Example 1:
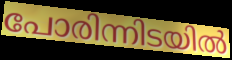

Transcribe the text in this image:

പോരിന്നിടയിൽ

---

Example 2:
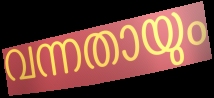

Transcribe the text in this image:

വന്നതായും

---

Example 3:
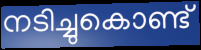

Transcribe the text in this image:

നടിച്ചുകൊണ്ട്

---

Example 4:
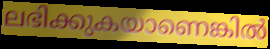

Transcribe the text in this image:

ലഭിക്കുകയാണെങ്കിൽ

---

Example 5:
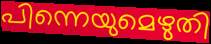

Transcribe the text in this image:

പിന്നെയുമെഴുതി